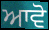
ਆਵੋ